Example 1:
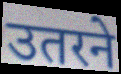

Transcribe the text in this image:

उतरने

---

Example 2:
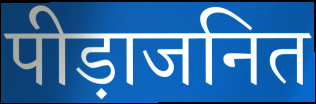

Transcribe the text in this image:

पीड़ाजनित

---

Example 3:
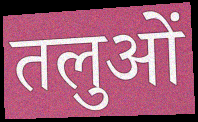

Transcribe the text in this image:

तलुओं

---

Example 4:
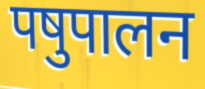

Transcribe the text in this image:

पषुपालन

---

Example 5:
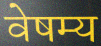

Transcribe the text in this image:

वेषम्य